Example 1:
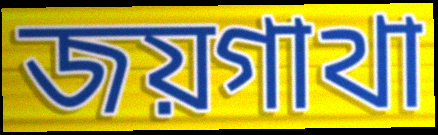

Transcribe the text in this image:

জয়গাথা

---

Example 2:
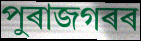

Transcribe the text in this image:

পুৰাজগৰৰ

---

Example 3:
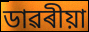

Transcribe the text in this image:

ডাৱৰীয়া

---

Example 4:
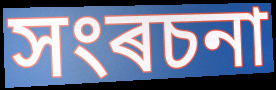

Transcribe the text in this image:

সংৰচনা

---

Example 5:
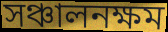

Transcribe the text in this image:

সঞ্চালনক্ষম